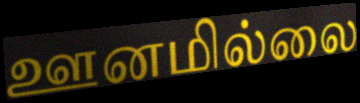
ஊனமில்லை